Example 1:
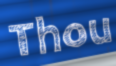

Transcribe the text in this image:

Thou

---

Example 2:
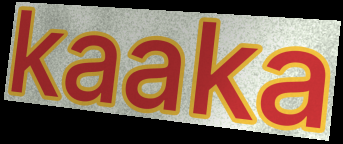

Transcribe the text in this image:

kaaka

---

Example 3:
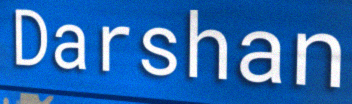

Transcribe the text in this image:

Darshan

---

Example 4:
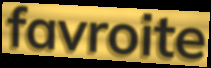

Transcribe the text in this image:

favroite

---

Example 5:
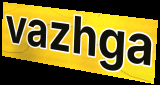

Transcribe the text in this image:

vazhga